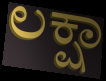
ಲಕ್ಷಾ